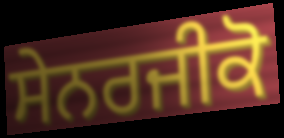
ਸੇਨਰਜੀਕੋ